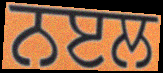
ਨੲਲ